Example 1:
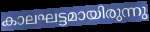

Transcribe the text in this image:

കാലഘട്ടമായിരുന്നു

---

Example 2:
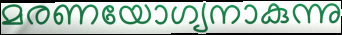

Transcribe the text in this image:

മരണയോഗ്യനാകുന്നു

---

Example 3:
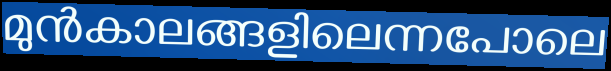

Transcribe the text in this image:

മുൻകാലങ്ങളിലെന്നപോലെ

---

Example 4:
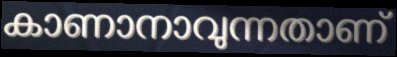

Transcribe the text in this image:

കാണാനാവുന്നതാണ്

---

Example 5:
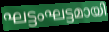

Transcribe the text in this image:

ഘട്ടംഘട്ടമായി